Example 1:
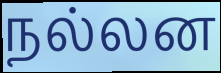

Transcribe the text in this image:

நல்லன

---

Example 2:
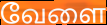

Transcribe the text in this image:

வேளை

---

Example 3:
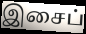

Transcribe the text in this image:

இசைப்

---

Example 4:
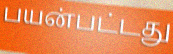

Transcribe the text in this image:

பயன்பட்டது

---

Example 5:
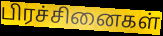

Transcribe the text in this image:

பிரச்சினைகள்